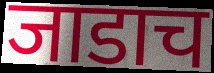
जाडाच